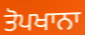
ਤੋਪਖਾਨਾ